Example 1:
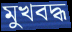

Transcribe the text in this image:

মুখবদ্ধ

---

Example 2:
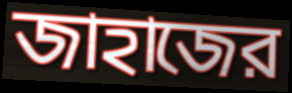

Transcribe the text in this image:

জাহাজের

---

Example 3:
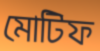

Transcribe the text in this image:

মোটিফ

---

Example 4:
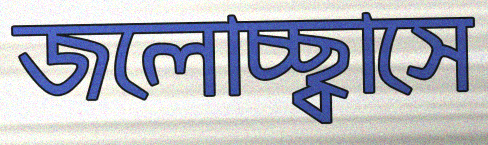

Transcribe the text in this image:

জলোচ্ছ্বাসে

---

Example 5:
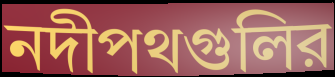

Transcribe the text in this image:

নদীপথগুলির